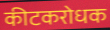
कीटकरोधक